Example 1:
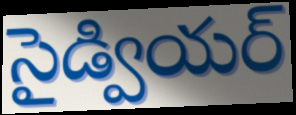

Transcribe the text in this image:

సైడ్వియర్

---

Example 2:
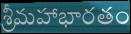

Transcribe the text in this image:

శ్రీమహాభారతం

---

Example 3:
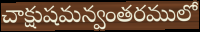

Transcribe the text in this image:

చాక్షుషమన్వంతరములో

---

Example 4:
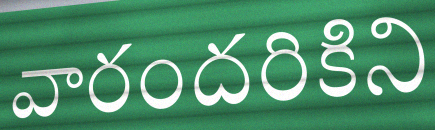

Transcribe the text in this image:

వారందరికిని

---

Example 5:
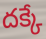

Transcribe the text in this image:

దక్కే